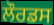
ਲੌਰਡਸ